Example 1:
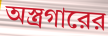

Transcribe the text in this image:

অস্ত্রগারের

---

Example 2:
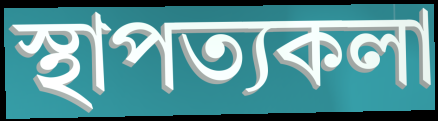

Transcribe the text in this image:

স্থাপত্যকলা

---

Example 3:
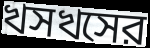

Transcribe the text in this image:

খসখসের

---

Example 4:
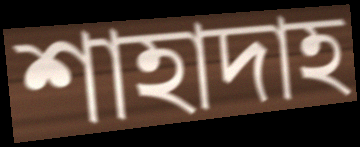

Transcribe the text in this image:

শাহাদাহ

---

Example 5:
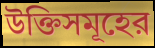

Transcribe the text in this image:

উক্তিসমূহের